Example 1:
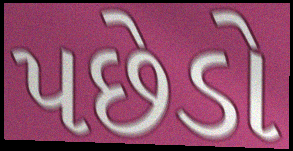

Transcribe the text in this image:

પછેડો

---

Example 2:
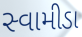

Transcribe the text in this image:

સ્વામીડા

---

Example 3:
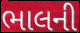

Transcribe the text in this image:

ભાલની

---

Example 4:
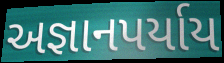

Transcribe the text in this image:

અજ્ઞાનપર્યાય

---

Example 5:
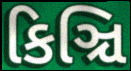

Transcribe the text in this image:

કિઞ્ચિ